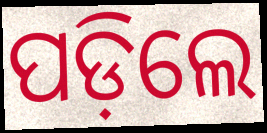
ପଡ଼ିଲେ